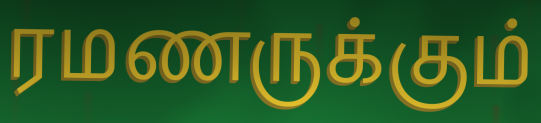
ரமணருக்கும்